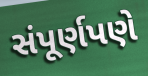
સંપૂર્ણપણે